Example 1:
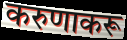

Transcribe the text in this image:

करुणाकरू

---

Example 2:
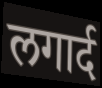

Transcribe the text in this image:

लगार्द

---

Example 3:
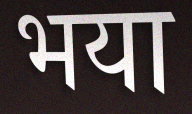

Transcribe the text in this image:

भया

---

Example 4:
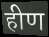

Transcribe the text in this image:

हीण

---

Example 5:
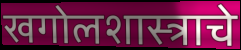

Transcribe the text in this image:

खगोलशास्त्राचे